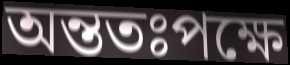
অন্ততঃপক্ষে